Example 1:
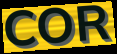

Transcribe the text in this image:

COR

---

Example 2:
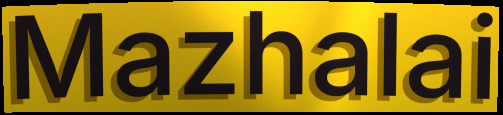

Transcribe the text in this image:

Mazhalai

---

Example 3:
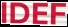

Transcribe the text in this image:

IDEF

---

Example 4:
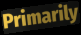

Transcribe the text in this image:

Primarily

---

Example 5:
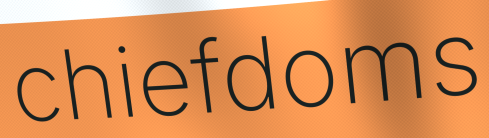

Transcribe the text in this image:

chiefdoms